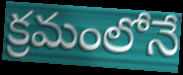
క్రమంలోనే